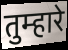
तुम्हारे